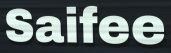
Saifee